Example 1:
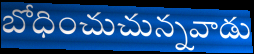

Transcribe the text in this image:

బోధించుచున్నవాడు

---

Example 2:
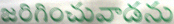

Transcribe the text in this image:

జరిగించువాడను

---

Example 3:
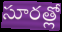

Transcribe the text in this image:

సూరత్లో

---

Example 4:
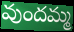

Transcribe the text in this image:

వుందమ్మ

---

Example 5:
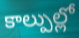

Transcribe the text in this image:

కాల్పుల్లో